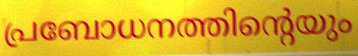
പ്രബോധനത്തിന്റെയും